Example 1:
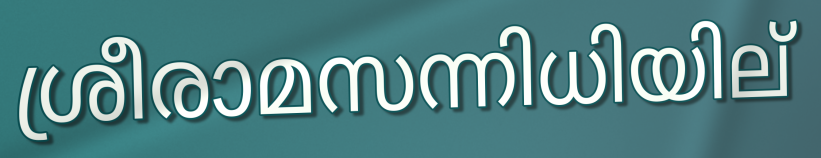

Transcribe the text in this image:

ശ്രീരാമസന്നിധിയില്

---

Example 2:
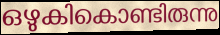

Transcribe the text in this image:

ഒഴുകികൊണ്ടിരുന്നു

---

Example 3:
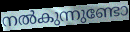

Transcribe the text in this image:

നൽകുന്നുണ്ടോ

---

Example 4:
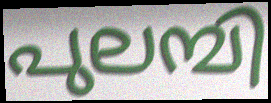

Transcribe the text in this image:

പുലമ്പി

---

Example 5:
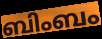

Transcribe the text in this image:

ബിംബം